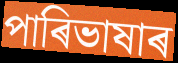
পাৰিভাষাৰ